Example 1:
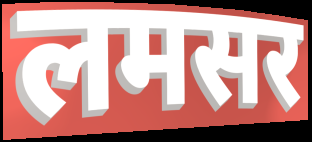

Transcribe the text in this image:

लमसर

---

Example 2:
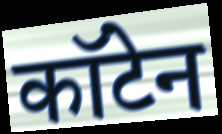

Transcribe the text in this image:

कॉटेन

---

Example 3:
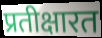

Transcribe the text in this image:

प्रतीक्षारत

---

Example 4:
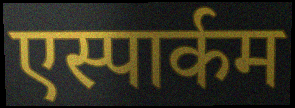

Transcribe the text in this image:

एस्पार्कम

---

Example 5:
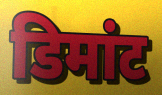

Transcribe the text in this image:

डिमांट